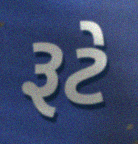
રૂટે